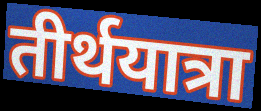
तीर्थयात्रा